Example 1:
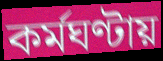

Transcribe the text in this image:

কর্মঘণ্টায়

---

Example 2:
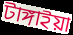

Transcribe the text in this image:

টাঙ্গাইয়া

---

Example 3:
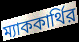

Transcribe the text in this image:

ম্যাককার্থির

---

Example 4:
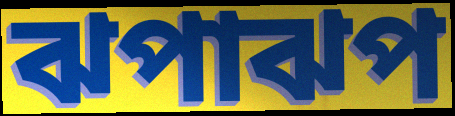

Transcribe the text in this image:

ঝপাঝপ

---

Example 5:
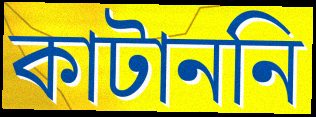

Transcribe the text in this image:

কাটাননি